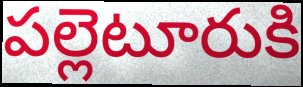
పల్లెటూరుకి